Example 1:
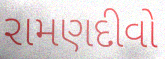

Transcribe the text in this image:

રામણદીવો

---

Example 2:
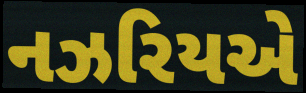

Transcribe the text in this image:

નઝરિયએ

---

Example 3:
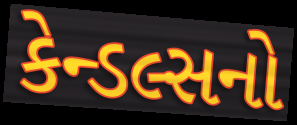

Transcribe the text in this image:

કેન્ડલ્સનો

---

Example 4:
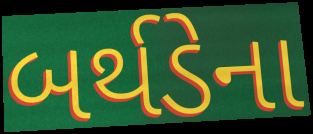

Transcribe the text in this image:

બર્થડેના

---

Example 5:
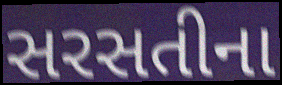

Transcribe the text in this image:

સરસતીના